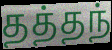
தத்தந்